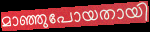
മാഞ്ഞുപോയതായി